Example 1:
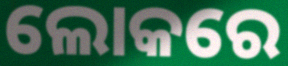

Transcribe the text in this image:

ଲୋକରେ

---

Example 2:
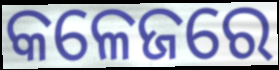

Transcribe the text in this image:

କଳେଜରେ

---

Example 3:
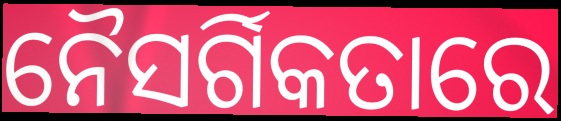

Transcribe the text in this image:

ନୈସର୍ଗିକତାରେ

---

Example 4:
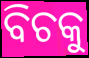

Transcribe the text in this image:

ବିଚକୁ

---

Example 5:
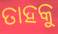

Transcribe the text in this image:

ତାହକୁ